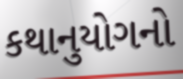
કથાનુયોગનો